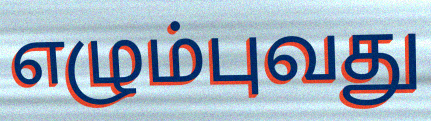
எழும்புவது